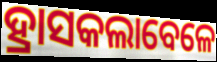
ହ୍ରାସକଲାବେଳେ